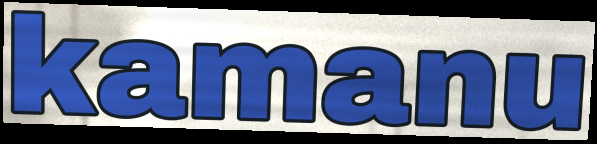
kamanu